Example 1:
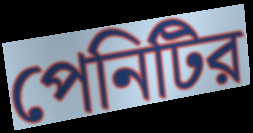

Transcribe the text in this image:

পেনিটির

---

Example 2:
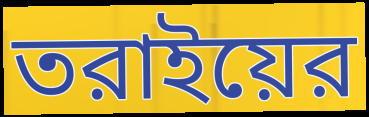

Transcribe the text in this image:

তরাইয়ের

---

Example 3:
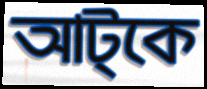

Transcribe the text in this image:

আট্‌কে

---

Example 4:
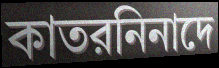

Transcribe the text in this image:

কাতরনিনাদে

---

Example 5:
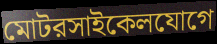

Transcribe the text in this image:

মোটরসাইকেলযোগে